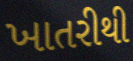
ખાતરીથી